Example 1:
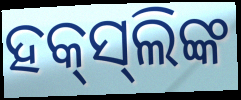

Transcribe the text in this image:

ହକ୍‌ସ୍‌ଲିଙ୍କ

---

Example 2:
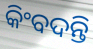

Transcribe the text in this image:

କିଂବଦନ୍ତି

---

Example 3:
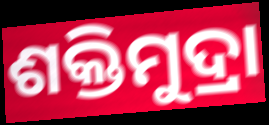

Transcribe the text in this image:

ଶକ୍ତିମୁଦ୍ରା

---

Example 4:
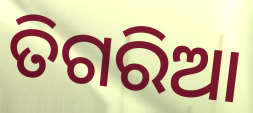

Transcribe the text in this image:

ତିଗରିଆ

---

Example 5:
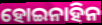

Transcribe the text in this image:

ହୋଇନାହିନ